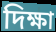
দিক্ষা